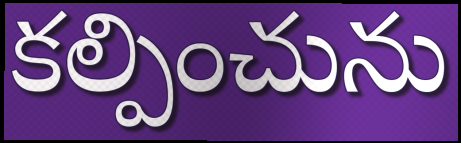
కల్పించును